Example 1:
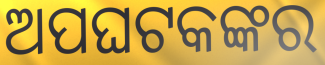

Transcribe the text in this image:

ଅପଘଟକଙ୍କର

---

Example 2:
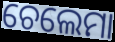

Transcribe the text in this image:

ଚେଲେମା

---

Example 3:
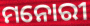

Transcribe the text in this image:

ମନୋରୀ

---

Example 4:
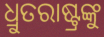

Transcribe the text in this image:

ଧ୍ରୁତରାଷ୍ଟ୍ରଙ୍କୁ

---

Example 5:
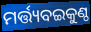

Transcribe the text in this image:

ମର୍ତ୍ତ୍ୟବଇକୁଣ୍ଠ